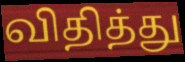
விதித்து